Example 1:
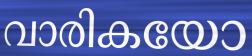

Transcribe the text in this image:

വാരികയോ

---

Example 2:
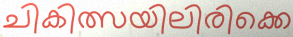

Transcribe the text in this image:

ചികിത്സയിലിരിക്കെ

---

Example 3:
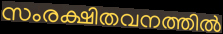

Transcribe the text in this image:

സംരക്ഷിതവനത്തിൽ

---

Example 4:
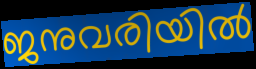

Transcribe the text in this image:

ജനുവരിയിൽ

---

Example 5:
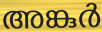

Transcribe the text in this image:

അങ്കുർ